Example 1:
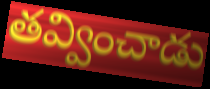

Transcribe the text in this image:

తవ్వించాడు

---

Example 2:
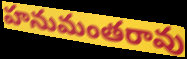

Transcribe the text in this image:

హనుమంతరావు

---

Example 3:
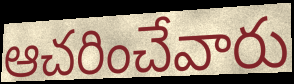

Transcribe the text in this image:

ఆచరించేవారు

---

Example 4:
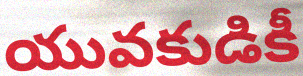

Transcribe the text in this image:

యువకుడికీ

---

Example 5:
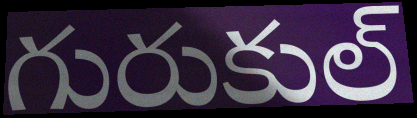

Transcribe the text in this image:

గురుకుల్